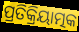
ପ୍ରତିକ୍ରିୟାତ୍ମକ